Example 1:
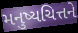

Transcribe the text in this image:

મનુષ્યચિત્તને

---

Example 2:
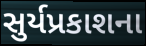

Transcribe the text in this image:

સુર્યપ્રકાશના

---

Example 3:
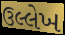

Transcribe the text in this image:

ઉલ્લેખ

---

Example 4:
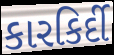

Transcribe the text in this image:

કારકિર્દી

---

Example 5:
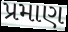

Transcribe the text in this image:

પ્રમાણ